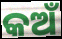
କଅଁ